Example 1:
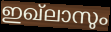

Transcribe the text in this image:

ഇഖ്‌ലാസും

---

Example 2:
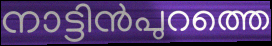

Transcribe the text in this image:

നാട്ടിൻപുറത്തെ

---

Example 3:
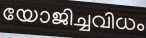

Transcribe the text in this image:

യോജിച്ചവിധം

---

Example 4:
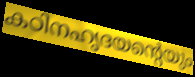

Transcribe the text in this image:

കഠിനഹൃദയന്റെയും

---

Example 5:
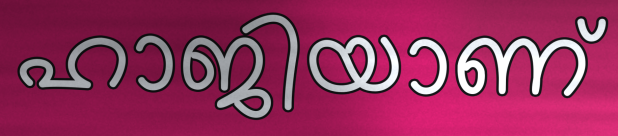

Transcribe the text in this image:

ഹാജിയാണ്